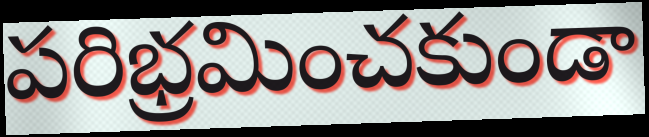
పరిభ్రమించకుండా